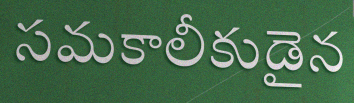
సమకాలీకుడైన